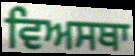
ਵਿਅਸਥਾ